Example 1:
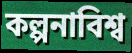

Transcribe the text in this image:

কল্পনাবিশ্ব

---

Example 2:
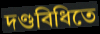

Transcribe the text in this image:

দণ্ডবিধিতে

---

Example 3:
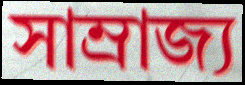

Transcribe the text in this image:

সাম্রাজ্য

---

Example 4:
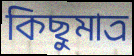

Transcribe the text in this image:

কিছুমাত্র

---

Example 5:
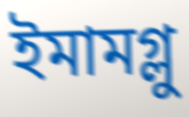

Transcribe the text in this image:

ইমামগ্লু